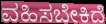
ವಹಿಸಬೇಕಿದೆ